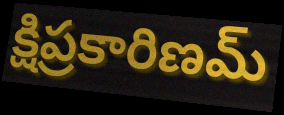
క్షిప్రకారిణమ్